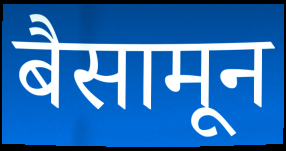
बैसामून